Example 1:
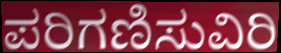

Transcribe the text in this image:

ಪರಿಗಣಿಸುವಿರಿ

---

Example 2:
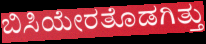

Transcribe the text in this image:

ಬಿಸಿಯೇರತೊಡಗಿತ್ತು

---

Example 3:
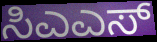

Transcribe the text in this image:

ಸಿಎಎಸ್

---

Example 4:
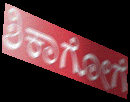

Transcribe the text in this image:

ಶಿಕಾಗೋಗೆ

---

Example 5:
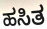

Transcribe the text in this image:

ಹಸಿತ